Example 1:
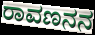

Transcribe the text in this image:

ರಾವಣನನ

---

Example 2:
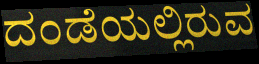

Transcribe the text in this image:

ದಂಡೆಯಲ್ಲಿರುವ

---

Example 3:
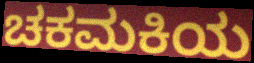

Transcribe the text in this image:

ಚಕಮಕಿಯ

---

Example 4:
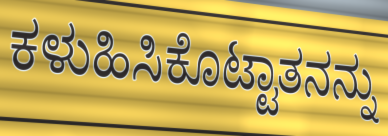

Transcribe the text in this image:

ಕಳುಹಿಸಿಕೊಟ್ಟಾತನನ್ನು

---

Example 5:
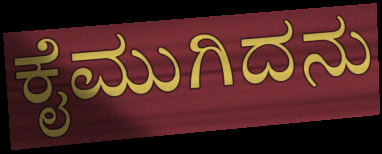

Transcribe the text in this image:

ಕೈಮುಗಿದನು